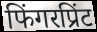
फिंगरप्रिंट